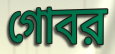
গোবর